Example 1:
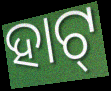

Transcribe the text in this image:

ହାଟ୍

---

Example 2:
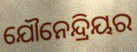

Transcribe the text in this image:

ଯୌନେନ୍ଦ୍ରିୟର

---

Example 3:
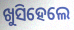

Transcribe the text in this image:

ଖୁସିହେଲେ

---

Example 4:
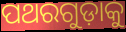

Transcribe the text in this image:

ପଥରଗୁଡ଼ାକୁ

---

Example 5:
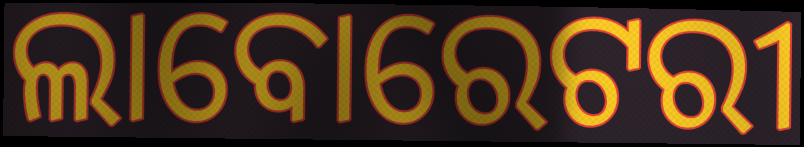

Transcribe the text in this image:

ଲାବୋରେଟରୀ